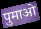
पुमाओ